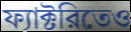
ফ্যাক্টরিতেও